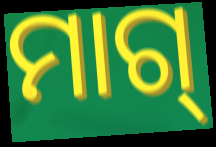
ମାଗ୍